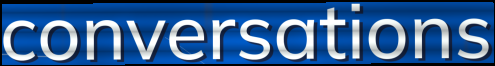
conversations